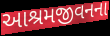
આશ્રમજીવનના